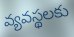
వ్యవస్థలకు